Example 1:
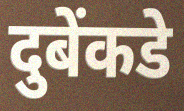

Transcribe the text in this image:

दुबेंकडे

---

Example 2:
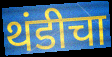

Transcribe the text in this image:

थंडीचा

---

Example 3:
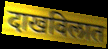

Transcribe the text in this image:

दाखविलात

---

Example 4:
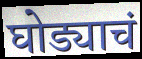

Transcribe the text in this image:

घोड्याचं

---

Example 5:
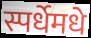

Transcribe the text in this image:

स्पर्धेमधे